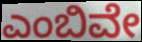
ಎಂಬಿವೇ